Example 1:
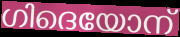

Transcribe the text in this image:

ഗിദെയോന്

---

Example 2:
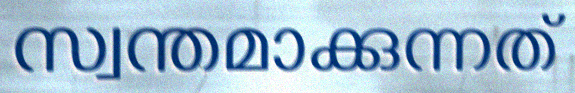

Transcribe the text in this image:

സ്വന്തമാക്കുന്നത്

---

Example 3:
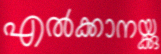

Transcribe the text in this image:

എൽക്കാനയ്ക്കു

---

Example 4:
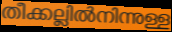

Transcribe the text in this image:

തീക്കല്ലിൽനിന്നുള്ള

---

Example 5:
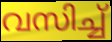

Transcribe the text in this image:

വസിച്ച്